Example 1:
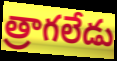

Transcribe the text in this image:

త్రాగలేడు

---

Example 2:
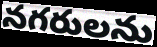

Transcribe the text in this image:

నగరులను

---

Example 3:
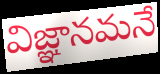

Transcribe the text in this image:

విజ్ఞానమనే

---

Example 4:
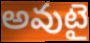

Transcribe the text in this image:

అవుటై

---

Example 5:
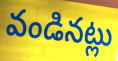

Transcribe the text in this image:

వండినట్లు